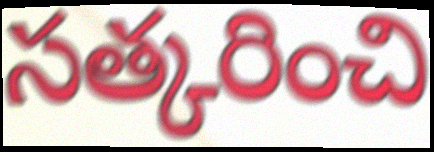
సత్కరించి